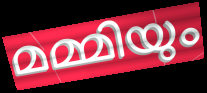
മമ്മിയും